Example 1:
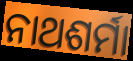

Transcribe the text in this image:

ନାଥଶର୍ମା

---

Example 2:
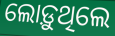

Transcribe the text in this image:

ଲୋଡ଼ୁଥିଲେ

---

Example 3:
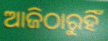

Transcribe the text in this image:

ଆଜିଠାରୁହିଁ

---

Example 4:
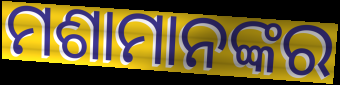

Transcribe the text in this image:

ମଶାମାନଙ୍କର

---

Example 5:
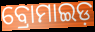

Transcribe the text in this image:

ବ୍ରୋମାଇଡ଼